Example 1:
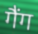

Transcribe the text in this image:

गैंग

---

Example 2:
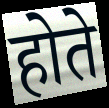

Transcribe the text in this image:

होते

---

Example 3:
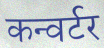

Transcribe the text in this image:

कन्वर्टर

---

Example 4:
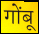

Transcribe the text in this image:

गोंबू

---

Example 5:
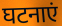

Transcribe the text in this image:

घटनाएं